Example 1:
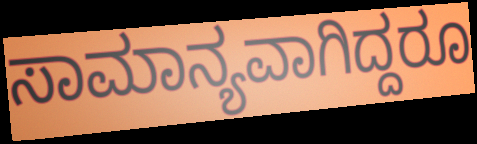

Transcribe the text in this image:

ಸಾಮಾನ್ಯವಾಗಿದ್ದರೂ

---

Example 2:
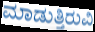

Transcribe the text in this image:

ಮಾಡುತ್ತಿರುವಿ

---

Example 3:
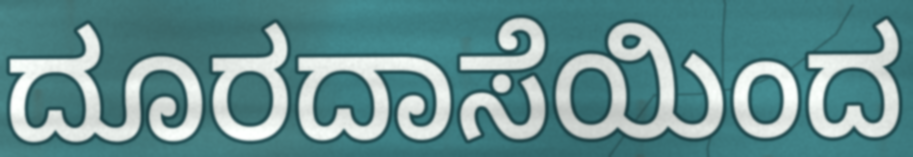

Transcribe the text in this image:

ದೂರದಾಸೆಯಿಂದ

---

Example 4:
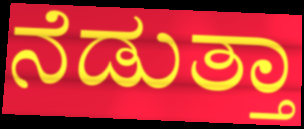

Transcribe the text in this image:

ನೆಡುತ್ತಾ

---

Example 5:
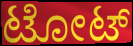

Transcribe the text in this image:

ಟೋಟ್